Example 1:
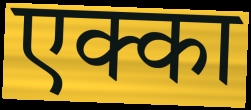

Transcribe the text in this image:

एक्का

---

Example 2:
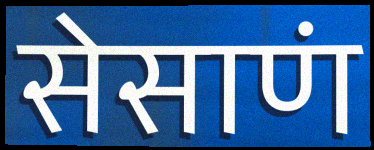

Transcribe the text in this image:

सेसाणं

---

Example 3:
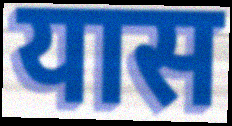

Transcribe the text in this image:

यास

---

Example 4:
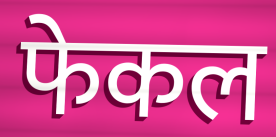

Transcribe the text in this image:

फेकल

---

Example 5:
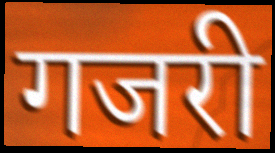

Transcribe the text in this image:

गजरी